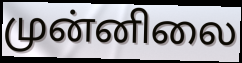
முன்னிலை